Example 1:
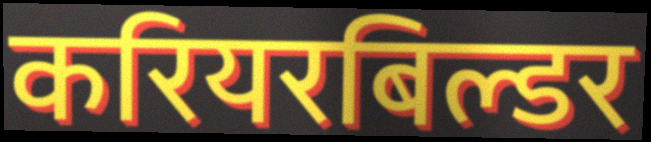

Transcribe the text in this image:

करियरबिल्डर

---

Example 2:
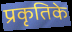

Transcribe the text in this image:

प्रकृतिके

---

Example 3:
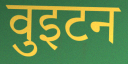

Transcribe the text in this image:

वुइटन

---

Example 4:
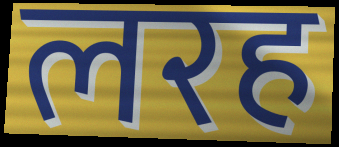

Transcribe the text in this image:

लरह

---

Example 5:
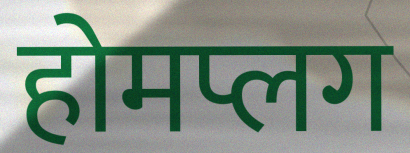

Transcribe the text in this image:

होमप्लग